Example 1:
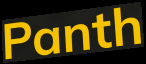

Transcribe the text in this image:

Panth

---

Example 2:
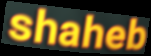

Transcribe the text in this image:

shaheb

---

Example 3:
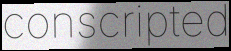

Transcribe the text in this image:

conscripted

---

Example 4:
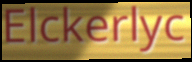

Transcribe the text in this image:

Elckerlyc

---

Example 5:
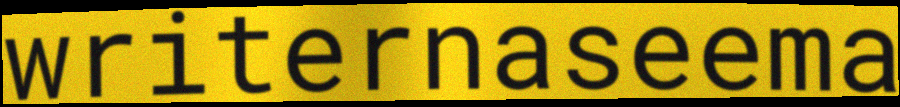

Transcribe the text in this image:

writernaseema